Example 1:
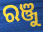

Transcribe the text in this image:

ରଞ୍ଜୁ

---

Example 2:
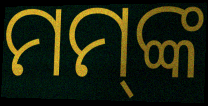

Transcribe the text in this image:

ମମ୍‍ଙ୍କ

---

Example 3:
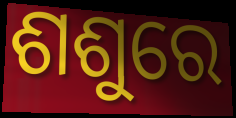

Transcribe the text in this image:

ଶଶୁରେ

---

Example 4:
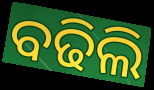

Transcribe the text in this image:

ବଢିଲି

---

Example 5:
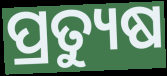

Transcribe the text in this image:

ପ୍ରତ୍ୟୁଷ